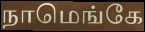
நாமெங்கே